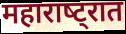
महाराष्‍ट्रात